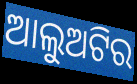
ଆଲୁଅଟିର